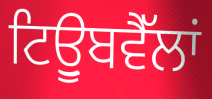
ਟਿਊੁਬਵੈੱਲਾਂ